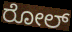
ರೋಲ್